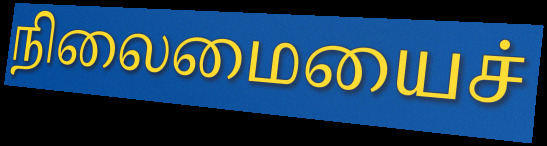
நிலைமையைச்